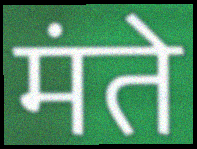
मंते